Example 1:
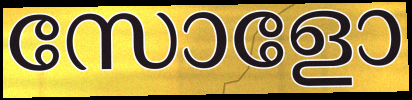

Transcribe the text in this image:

സോളോ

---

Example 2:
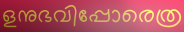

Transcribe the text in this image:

ളനുഭവിപ്പോരെത്ര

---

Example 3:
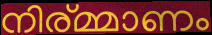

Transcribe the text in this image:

നിര്മ്മാണം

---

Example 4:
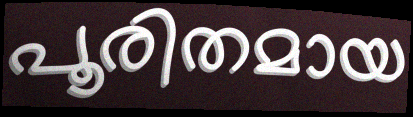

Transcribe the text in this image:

പൂരിതമായ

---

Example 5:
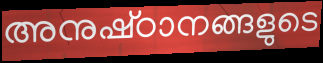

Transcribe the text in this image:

അനുഷ്‌ഠാനങ്ങളുടെ